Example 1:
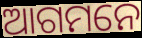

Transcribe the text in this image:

ଆଗମନେ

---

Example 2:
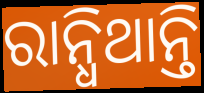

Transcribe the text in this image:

ରାନ୍ଧିଥାନ୍ତି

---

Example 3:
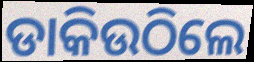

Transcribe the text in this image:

ଡାକିଉଠିଲେ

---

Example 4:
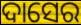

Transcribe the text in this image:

ଦାସେର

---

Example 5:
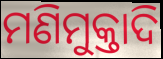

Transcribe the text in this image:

ମଣିମୁକ୍ତାଦି